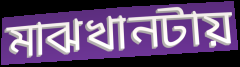
মাঝখানটায়